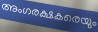
അംഗരക്ഷകരെയും